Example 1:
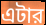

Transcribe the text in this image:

এটার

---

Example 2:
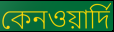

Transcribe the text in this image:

কেনওয়ার্দি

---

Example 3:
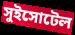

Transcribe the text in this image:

সুইসোটেল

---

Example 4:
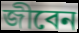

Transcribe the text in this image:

জীবেন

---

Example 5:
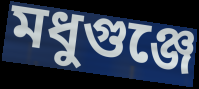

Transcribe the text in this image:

মধুগুঞ্জে